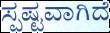
ಸ್ಪಷ್ಟವಾಗಿದೆ